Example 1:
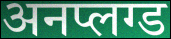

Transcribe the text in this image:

अनप्लग्ड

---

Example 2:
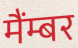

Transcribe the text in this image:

मैंम्बर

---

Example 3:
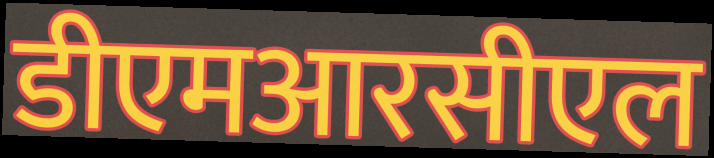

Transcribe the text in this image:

डीएमआरसीएल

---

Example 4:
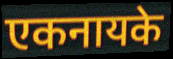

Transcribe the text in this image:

एकनायके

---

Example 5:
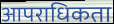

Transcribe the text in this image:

आपराधिकता